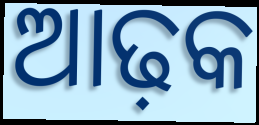
ଆଢ଼କ